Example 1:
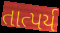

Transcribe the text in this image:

તાત્પર્ય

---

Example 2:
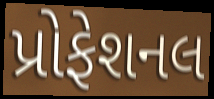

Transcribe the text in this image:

પ્રોફેશનલ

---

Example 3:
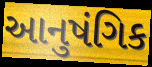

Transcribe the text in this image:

આનુષંગિક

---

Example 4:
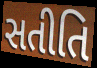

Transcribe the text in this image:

સતીતિ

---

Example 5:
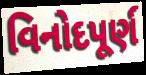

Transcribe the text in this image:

વિનોદપૂર્ણ